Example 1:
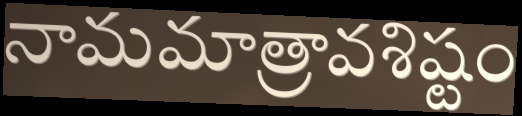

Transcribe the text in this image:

నామమాత్రావశిష్టం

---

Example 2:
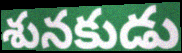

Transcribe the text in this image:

శునకుడు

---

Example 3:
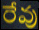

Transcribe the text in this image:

రేవు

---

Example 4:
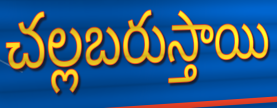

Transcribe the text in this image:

చల్లబరుస్తాయి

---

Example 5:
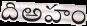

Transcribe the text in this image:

దిఅహం